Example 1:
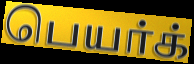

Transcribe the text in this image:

பெயர்க்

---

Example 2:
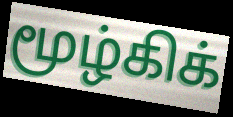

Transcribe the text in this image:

மூழ்கிக்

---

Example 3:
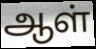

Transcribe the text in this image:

ஆள்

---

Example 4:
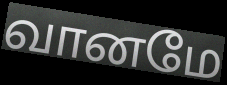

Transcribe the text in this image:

வானமே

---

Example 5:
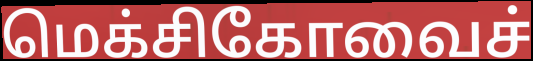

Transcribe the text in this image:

மெக்சிகோவைச்